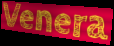
Venera